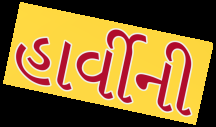
હાર્વીની